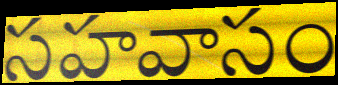
సహవాసం